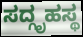
ಸದ್ಗೃಹಸ್ಥ